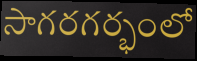
సాగరగర్భంలో